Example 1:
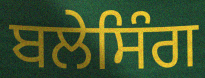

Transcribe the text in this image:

ਬਲੇਸਿੰਗ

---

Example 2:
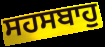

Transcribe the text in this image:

ਸਹਸਬਾਹੁ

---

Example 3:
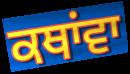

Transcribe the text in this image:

ਕਥਾਂਵਾ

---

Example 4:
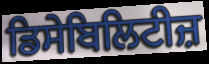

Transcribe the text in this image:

ਡਿਸੇਬਿਲਿਟੀਜ਼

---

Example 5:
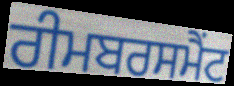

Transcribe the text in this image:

ਰੀਮਬਰਸਮੈਂਟ